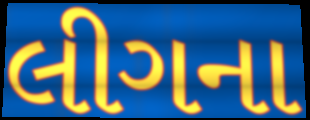
લીગના